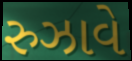
રુઝાવે